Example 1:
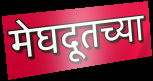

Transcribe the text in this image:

मेघदूतच्या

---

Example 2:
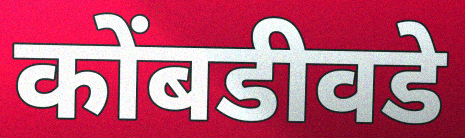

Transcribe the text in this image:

कोंबडीवडे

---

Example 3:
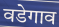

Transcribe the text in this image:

वडेगाव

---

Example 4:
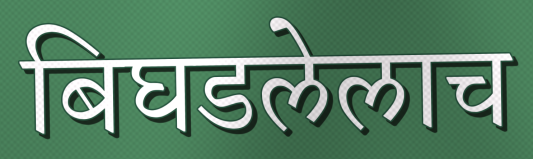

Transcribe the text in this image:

बिघडलेलाच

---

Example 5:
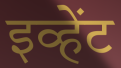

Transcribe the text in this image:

इव्हेंट